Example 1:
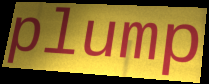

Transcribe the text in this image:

plump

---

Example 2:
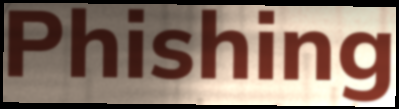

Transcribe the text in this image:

Phishing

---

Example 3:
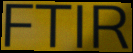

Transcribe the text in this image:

FTIR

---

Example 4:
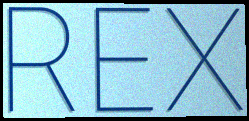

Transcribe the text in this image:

REX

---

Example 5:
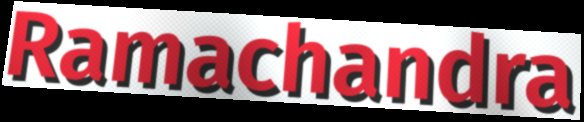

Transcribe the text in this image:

Ramachandra